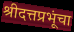
श्रीदत्तप्रभूंचा